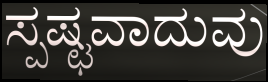
ಸ್ಪಷ್ಟವಾದುವು